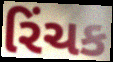
રિંચક